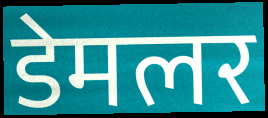
डेमलर